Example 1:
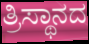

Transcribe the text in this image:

ತ್ರಿಸ್ಥಾನದ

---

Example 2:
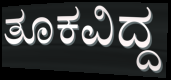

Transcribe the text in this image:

ತೂಕವಿದ್ದ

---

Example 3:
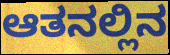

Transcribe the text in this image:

ಆತನಲ್ಲಿನ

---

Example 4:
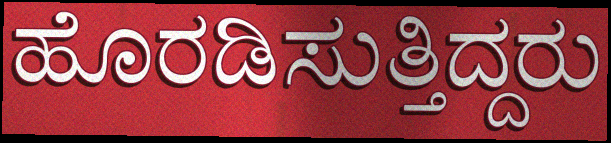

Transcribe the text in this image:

ಹೊರಡಿಸುತ್ತಿದ್ದರು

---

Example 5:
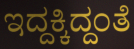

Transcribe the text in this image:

ಇದ್ದಕ್ಕಿದ್ದಂತೆ